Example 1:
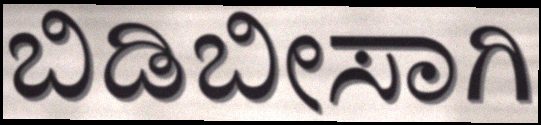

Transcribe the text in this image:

ಬಿಡಿಬೀಸಾಗಿ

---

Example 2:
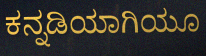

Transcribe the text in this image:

ಕನ್ನಡಿಯಾಗಿಯೂ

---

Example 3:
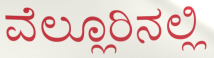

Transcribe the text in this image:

ವೆಲ್ಲೂರಿನಲ್ಲಿ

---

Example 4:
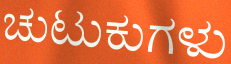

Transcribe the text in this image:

ಚುಟುಕುಗಳು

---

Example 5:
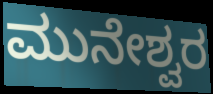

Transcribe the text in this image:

ಮುನೇಶ್ವರ